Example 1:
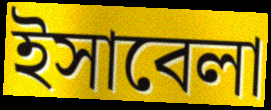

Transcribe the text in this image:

ইসাবেলা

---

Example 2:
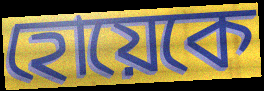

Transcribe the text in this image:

হোয়েকে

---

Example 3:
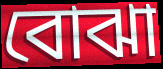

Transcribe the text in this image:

বোঝা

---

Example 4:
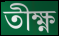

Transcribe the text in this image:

তীক্ষ্ণ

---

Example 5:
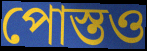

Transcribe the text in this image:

পোস্তও